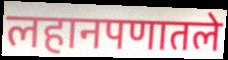
लहानपणातले